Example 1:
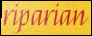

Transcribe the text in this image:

riparian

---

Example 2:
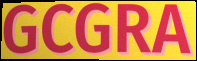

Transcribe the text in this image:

GCGRA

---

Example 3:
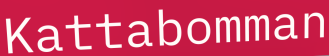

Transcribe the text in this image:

Kattabomman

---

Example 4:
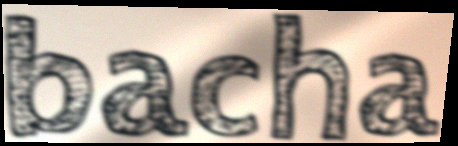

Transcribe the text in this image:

bacha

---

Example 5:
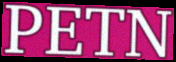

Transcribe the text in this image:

PETN